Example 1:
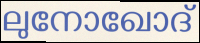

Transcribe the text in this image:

ലുനോഖോദ്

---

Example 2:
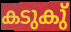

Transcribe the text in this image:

കടുകു്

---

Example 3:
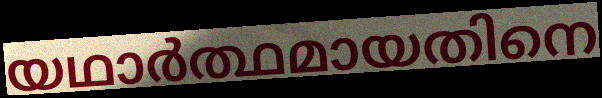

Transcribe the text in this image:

യഥാർത്ഥമായതിനെ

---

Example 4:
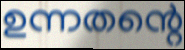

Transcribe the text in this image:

ഉന്നതന്റെ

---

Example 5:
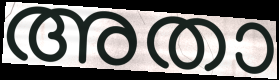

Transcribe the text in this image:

അതാ